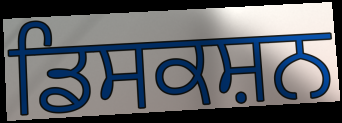
ਡਿਸਕਸ਼ਨ